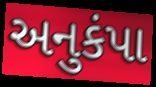
અનુકંપા